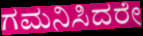
ಗಮನಿಸಿದರೇ